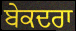
ਬੇਕਦਰਾ